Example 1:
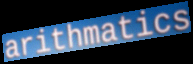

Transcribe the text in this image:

arithmatics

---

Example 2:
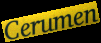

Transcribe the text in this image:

Cerumen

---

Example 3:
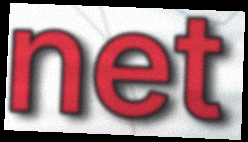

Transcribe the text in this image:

net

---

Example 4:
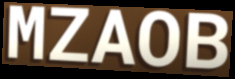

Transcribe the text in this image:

MZAOB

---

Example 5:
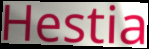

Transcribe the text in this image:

Hestia